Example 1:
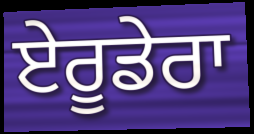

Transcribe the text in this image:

ਏਰੂਡੇਰਾ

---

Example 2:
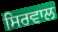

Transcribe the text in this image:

ਸਿਰਵਾਲ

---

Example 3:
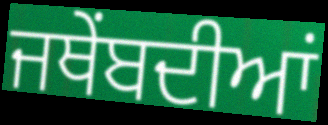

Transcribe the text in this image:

ਜਥੇਂਬਦੀਆਂ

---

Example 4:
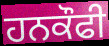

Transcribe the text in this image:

ਹਨਕੌਫੀ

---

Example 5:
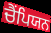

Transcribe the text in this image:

ਚੈੰਪਿਯਨ